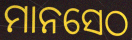
ମାନସେଠ